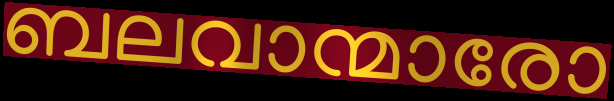
ബലവാന്മാരോ